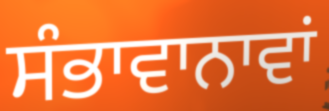
ਸੰਭਾਵਾਨਾਵਾਂ